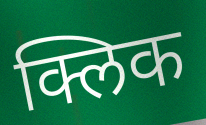
क्लिक